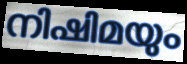
നിഷിമയും